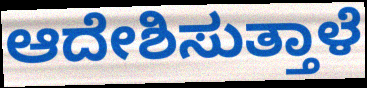
ಆದೇಶಿಸುತ್ತಾಳೆ